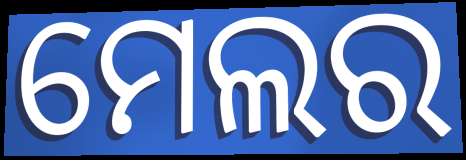
ମେଲର